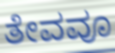
ತೇವವೂ